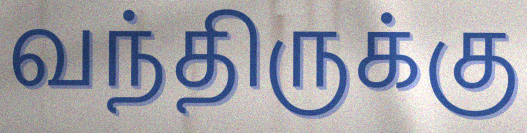
வந்திருக்கு